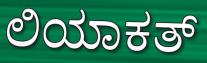
ಲಿಯಾಕತ್